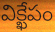
విక్ఖేపం